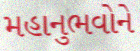
મહાનુભવોને